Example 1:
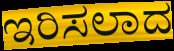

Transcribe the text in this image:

ಇರಿಸಲಾದ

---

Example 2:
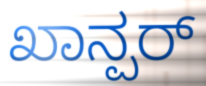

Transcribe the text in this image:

ಖಾನ್ಪರ್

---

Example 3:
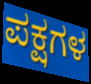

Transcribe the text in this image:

ಪಕ್ಷಗಳ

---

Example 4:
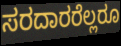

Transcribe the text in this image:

ಸರದಾರರೆಲ್ಲರೂ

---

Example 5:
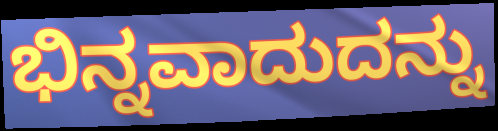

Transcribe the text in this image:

ಭಿನ್ನವಾದುದನ್ನು